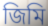
জিমি